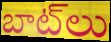
బాట్‌లు